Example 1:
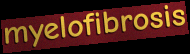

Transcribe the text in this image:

myelofibrosis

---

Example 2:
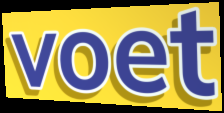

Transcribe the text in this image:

voet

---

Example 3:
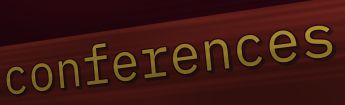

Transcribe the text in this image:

conferences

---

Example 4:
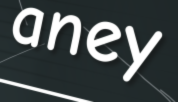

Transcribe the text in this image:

aney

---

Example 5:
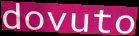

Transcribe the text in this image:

dovuto